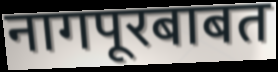
नागपूरबाबत